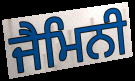
ਜੈਮਿਨੀ